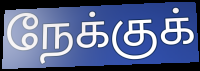
நேக்குக்